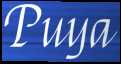
Puya